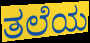
ತಲೆಯ